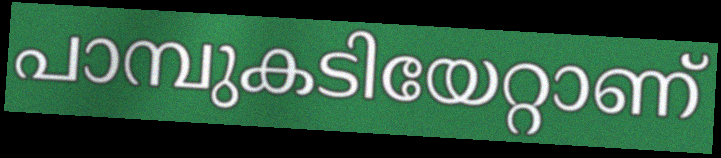
പാമ്പുകടിയേറ്റാണ്